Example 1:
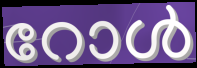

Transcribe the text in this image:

റോൾ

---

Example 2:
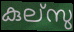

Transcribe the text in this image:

കുല്സു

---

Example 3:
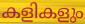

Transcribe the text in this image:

കളികളും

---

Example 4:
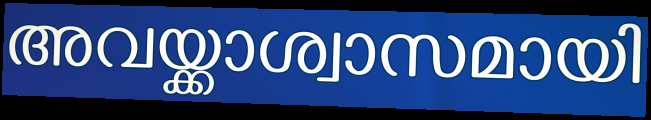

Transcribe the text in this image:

അവയ്ക്കാശ്വാസമായി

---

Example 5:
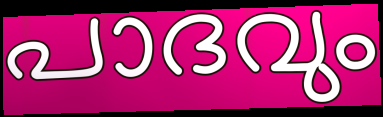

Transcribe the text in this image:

പാദവും